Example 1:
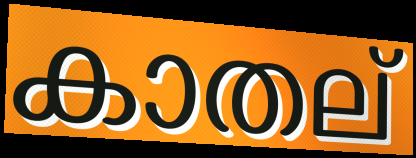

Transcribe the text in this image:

കാതല്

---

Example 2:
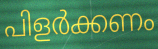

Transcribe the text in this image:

പിളർക്കണം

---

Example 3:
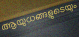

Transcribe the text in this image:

ആയുധങ്ങളുടെയും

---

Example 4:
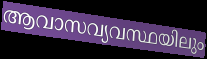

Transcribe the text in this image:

ആവാസവ്യവസ്ഥയിലും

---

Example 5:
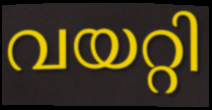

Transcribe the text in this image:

വയറ്റി